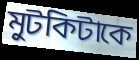
মুটকিটাকে